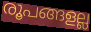
രൂപങ്ങളല്ല